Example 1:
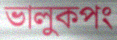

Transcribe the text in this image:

ভালুকপং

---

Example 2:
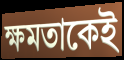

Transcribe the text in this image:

ক্ষমতাকেই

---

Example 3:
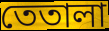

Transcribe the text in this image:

তেতালা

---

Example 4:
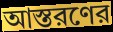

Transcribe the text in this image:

আস্তরণের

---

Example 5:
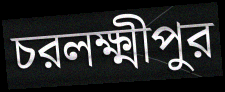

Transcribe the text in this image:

চরলক্ষ্মীপুর